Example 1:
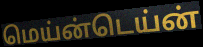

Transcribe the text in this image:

மெய்ன்டெய்ன்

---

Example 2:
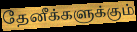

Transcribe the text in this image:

தேனீக்களுக்கும்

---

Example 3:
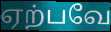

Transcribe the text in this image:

ஏற்பவே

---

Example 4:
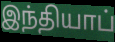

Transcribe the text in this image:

இந்தியாப்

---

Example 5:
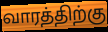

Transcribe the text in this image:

வாரத்திற்கு